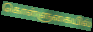
கொள்ளுகையில்